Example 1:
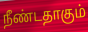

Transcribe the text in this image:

நீண்டதாகும்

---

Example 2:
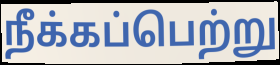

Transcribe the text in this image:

நீக்கப்பெற்று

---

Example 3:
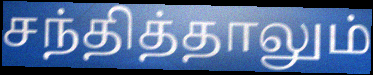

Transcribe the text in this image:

சந்தித்தாலும்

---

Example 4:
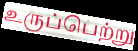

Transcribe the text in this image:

உருப்பெற்று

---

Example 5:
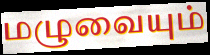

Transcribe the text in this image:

மழுவையும்